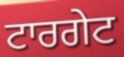
ਟਾਰਗੇਟ